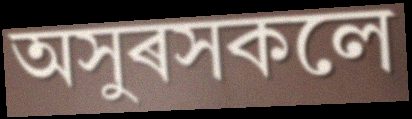
অসুৰসকলে